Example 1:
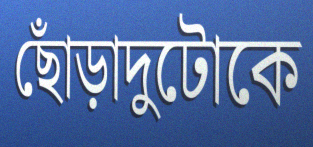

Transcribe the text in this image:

ছোঁড়াদুটোকে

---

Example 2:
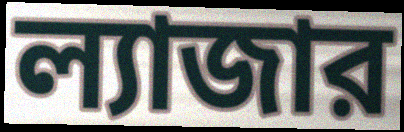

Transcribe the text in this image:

ল্যাজার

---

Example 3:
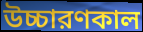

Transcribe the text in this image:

উচ্চারণকাল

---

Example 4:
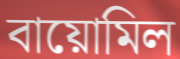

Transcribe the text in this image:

বায়োমিল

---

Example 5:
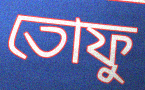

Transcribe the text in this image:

তোফু